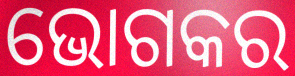
ଭୋଗକର